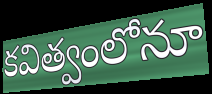
కవిత్వంలోనూ